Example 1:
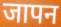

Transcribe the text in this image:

जापन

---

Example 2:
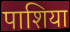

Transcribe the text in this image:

पाशिया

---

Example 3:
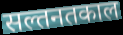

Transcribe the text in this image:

सल्तनतकाल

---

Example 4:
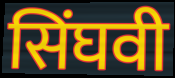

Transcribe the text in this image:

सिंघवी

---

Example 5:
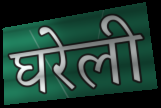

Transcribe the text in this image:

घरेली